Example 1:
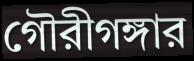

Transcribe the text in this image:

গৌরীগঙ্গার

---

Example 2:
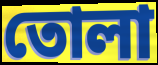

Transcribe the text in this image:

তোলা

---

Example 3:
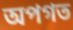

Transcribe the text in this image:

অপগত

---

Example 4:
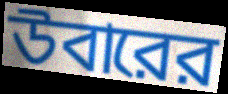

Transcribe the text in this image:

উবারের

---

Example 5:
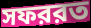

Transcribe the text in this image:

সফররত